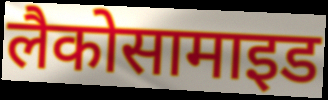
लैकोसामाइड